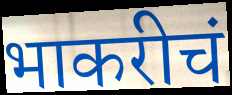
भाकरीचं